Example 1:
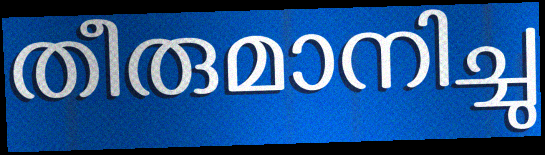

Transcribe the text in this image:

തീരുമാനിച്ചു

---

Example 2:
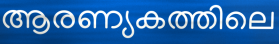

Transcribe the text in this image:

ആരണ്യകത്തിലെ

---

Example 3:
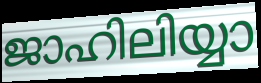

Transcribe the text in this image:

ജാഹിലിയ്യാ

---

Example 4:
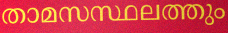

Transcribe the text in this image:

താമസസ്ഥലത്തും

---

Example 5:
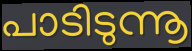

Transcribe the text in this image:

പാടിടുന്നൂ